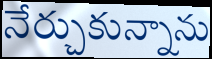
నేర్చుకున్నాను